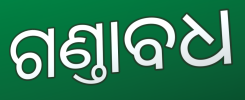
ଗଣ୍ତାବଧ